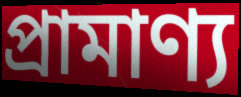
প্ৰামাণ্য